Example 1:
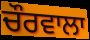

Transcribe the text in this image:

ਚੌਰਵਾਲਾ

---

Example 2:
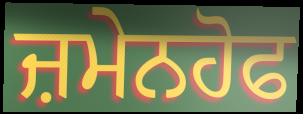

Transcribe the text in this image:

ਜ਼ਮੇਨਹੋਫ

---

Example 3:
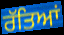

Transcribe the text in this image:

ਰੱਤਿਆਂ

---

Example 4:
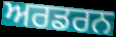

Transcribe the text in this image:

ਅਰਡਰਨ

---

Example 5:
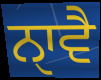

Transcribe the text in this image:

ਨੑਾਵੈ